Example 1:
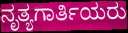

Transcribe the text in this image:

ನೃತ್ಯಗಾರ್ತಿಯರು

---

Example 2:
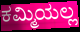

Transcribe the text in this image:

ಕಮ್ಮಿಯಲ್ಲ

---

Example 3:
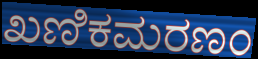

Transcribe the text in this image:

ಖಣಿಕಮರಣಂ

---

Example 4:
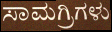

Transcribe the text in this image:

ಸಾಮಗ್ರಿಗಳು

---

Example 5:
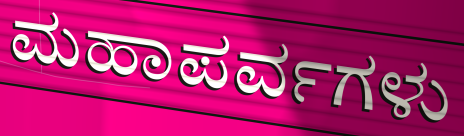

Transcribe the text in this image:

ಮಹಾಪರ್ವಗಳು